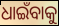
ଧାଇଁବାକୁ